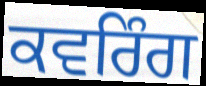
ਕਵਰਿੰਗ